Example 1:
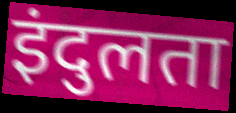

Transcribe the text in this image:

इंदुलता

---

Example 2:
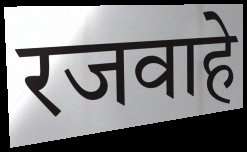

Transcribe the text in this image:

रजवाहे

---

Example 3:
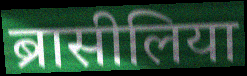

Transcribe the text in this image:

ब्रासीलिया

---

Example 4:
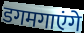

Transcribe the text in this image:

डगमगाएंगे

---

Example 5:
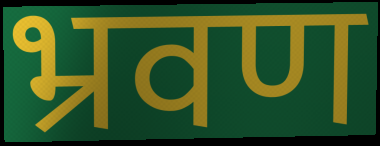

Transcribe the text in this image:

भ्रवण